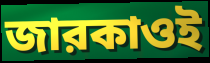
জারকাওই